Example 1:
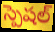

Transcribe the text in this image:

స్పెషల్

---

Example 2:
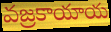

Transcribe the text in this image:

వజ్రకాయాయ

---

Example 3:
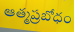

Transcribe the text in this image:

ఆత్మప్రబోధం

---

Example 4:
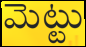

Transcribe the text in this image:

మెట్టు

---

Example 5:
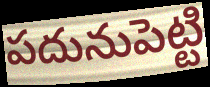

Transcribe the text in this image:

పదునుపెట్టి